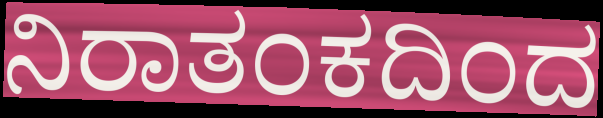
ನಿರಾತಂಕದಿಂದ